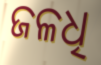
ଜଳଧି